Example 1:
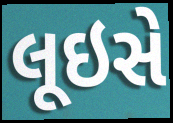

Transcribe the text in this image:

લૂઇસે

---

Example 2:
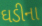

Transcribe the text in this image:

ઘડીના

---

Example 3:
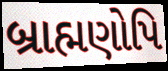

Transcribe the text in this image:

બ્રાહ્મણોપિ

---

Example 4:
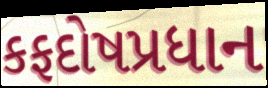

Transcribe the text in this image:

કફદોષપ્રધાન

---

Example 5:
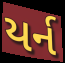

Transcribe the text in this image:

યર્ન